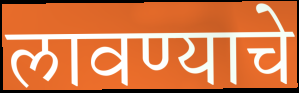
लावण्याचे